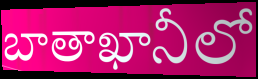
బాతాఖానీలో